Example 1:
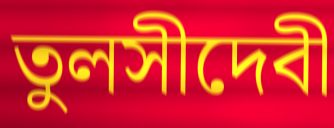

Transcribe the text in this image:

তুলসীদেবী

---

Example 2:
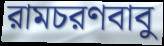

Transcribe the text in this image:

রামচরণবাবু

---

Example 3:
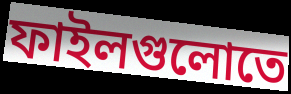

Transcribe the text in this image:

ফাইলগুলোতে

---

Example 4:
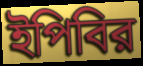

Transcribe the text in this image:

ইপিবির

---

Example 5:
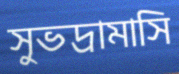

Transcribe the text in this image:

সুভদ্রামাসি